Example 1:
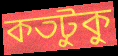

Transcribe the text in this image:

কতটুকু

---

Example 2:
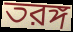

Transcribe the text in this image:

তরঙ্গ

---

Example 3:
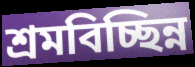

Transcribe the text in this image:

শ্রমবিচ্ছিন্ন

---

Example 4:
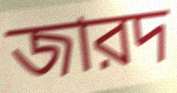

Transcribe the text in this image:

জারদ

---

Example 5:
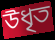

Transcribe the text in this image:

উধৃত